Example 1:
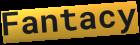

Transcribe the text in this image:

Fantacy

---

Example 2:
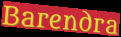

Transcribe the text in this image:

Barendra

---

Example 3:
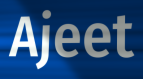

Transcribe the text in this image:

Ajeet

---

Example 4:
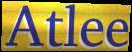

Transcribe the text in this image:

Atlee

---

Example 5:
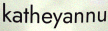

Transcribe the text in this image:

katheyannu